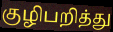
குழிபறித்து